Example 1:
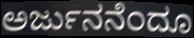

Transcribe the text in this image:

ಅರ್ಜುನನೆಂದೂ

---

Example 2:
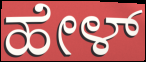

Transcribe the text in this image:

ಹೇಳ್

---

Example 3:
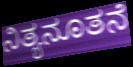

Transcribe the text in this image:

ನಿತ್ಯನೂತನೆ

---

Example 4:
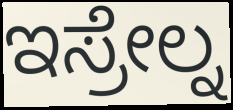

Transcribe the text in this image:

ಇಸ್ರೇಲ್ನ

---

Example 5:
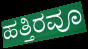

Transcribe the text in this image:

ಹತ್ತಿರವೂ